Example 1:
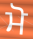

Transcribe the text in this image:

ਮੋ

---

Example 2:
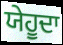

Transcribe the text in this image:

ਯੇਹੂਦਾ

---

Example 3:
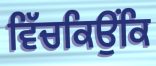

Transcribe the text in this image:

ਵਿੱਚਕਿਉਂਕਿ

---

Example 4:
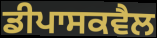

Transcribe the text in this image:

ਡੀਪਾਸਕਵੈਲ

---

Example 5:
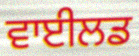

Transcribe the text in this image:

ਵਾਈਲਡ